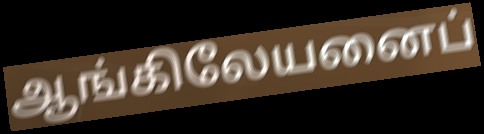
ஆங்கிலேயனைப்